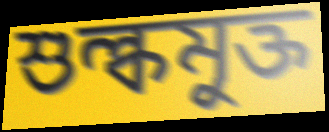
শুল্কমুক্ত